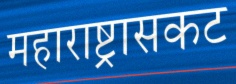
महाराष्ट्रासकट